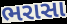
ભરાસા